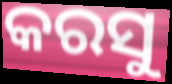
କରସୁ